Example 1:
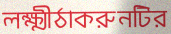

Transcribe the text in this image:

লক্ষ্মীঠাকরুনটির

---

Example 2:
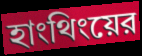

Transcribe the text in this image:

হাংথিংয়ের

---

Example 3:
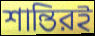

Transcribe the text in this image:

শান্তিরই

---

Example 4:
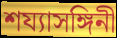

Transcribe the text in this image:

শয্যাসঙ্গিনী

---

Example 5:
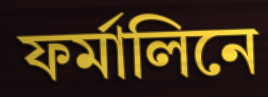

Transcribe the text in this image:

ফর্মালিনে